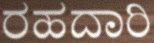
ರಹದಾರಿ